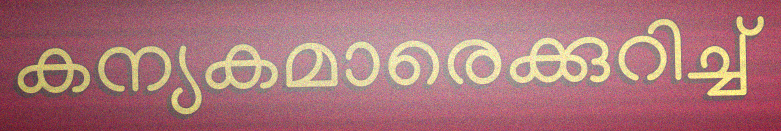
കന്യകമാരെക്കുറിച്ച്